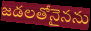
జడలతోనైనను